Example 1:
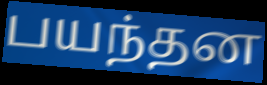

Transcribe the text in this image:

பயந்தன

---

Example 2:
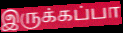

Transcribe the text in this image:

இருக்கப்பா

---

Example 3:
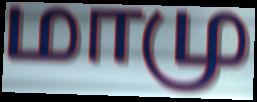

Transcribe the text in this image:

மாமு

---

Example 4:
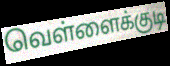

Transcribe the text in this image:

வெள்ளைக்குடி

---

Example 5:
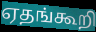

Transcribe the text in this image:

ஏதங்கூறி